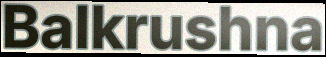
Balkrushna